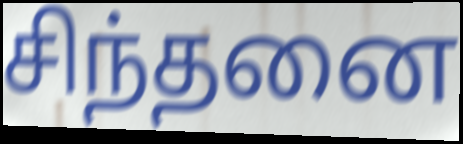
சிந்தனை